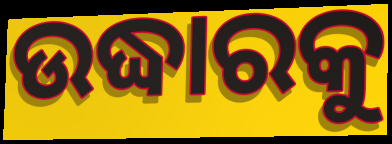
ଉଦ୍ଧାରକୁ